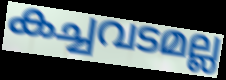
കച്ചവടമല്ല